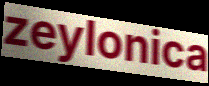
zeylonica